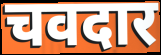
चवदार